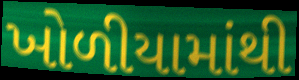
ખોળીયામાંથી